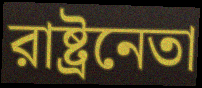
রাষ্ট্রনেতা